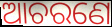
ଆଚରଣେ